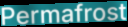
Permafrost